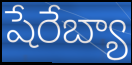
షేరేబ్యా